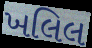
ખલિલ